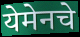
येमेनचे